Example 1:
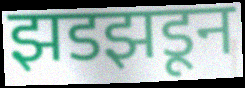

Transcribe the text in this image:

झडझडून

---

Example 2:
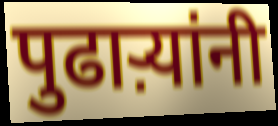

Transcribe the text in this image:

पुढाऱ्‍यांनी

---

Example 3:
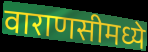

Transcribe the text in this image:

वाराणसीमध्ये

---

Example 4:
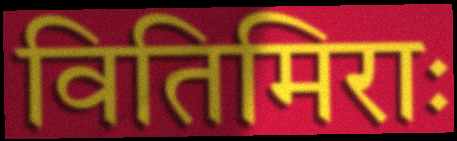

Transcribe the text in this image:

वितिमिराः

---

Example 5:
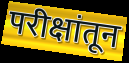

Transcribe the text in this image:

परीक्षांतून